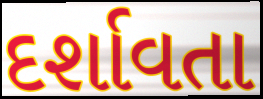
દર્શાવતા